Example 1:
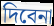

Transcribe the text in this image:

দিবেনা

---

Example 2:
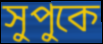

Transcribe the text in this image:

সুপুকে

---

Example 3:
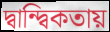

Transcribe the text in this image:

দ্বান্দ্বিকতায়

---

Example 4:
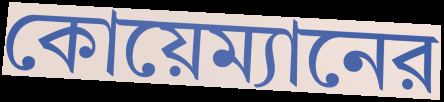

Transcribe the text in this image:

কোয়েম্যানের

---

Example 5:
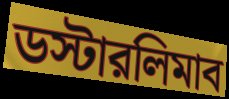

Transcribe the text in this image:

ডস্টারলিমাব